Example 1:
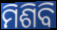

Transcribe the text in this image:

ମିଶିବି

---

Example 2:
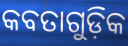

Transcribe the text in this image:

କବତାଗୁଡ଼ିକ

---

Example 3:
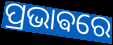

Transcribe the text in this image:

ପ୍ରଭାଵରେ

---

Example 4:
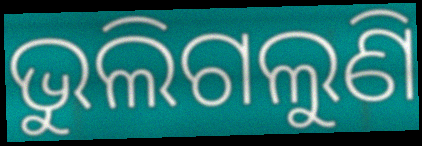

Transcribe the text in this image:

ଭୁଲିଗଲୁଣି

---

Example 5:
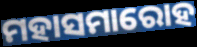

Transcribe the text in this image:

ମହାସମାରୋହ